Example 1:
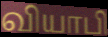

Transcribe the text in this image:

வியாபி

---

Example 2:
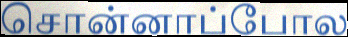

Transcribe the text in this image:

சொன்னாப்போல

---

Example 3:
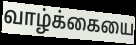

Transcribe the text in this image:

வாழ்க்கையை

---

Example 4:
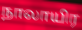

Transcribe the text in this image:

நாலாயிர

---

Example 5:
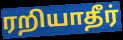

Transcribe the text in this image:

ரறியாதீர்